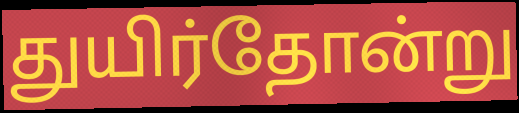
துயிர்தோன்று